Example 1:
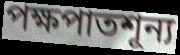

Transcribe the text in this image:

পক্ষপাতশূন্য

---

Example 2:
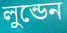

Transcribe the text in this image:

লুন্ডেন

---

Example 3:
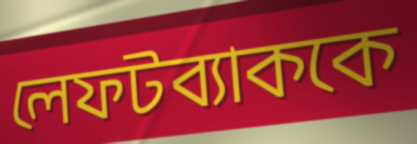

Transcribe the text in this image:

লেফটব্যাককে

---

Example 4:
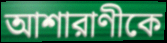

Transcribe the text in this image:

আশারাণীকে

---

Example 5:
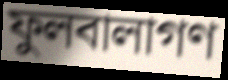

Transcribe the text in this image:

ফুলবালাগণ